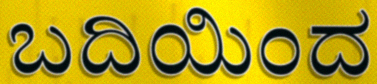
ಬದಿಯಿಂದ